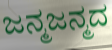
ಜನ್ಮಜನ್ಮದ